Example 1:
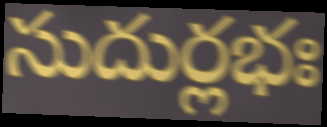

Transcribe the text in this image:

సుదుర్లభః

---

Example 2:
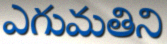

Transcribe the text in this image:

ఎగుమతిని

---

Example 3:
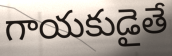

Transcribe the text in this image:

గాయకుడైతే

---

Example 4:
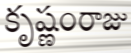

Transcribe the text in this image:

కృష్ణంరాజు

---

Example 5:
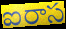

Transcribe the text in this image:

ఐరాస